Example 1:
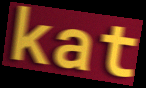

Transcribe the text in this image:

kat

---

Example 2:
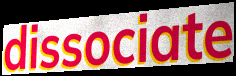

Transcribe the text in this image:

dissociate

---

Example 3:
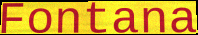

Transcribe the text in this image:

Fontana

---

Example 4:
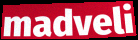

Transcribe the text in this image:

madveli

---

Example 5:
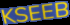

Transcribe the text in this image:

KSEEB